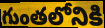
గుంతలోనికి